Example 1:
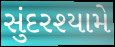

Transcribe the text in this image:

સુંદરશ્યામે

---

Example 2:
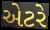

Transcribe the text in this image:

એટરે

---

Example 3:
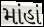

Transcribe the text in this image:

માંહાં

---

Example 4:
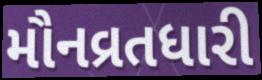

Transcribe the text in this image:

મૌનવ્રતધારી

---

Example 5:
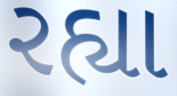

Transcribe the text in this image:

રહ્યા